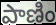
పాణిం